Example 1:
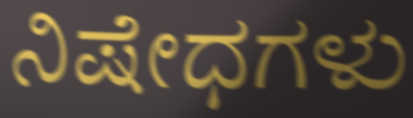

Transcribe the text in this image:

ನಿಷೇಧಗಳು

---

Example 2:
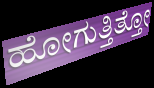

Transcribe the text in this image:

ಹೋಗುತ್ತಿತ್ತೋ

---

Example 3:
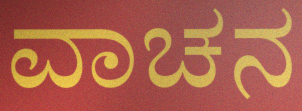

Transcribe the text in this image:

ವಾಚನ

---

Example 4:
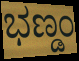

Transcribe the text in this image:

ಭಣ್ಡಂ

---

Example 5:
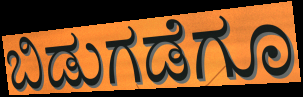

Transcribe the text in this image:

ಬಿಡುಗಡೆಗೂ